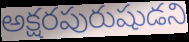
అక్షరపురుషుడని